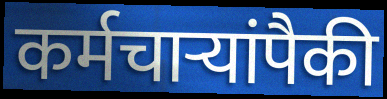
कर्मचाऱ्यांपैकी